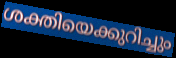
ശക്തിയെക്കുറിച്ചും